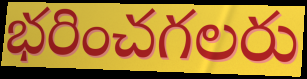
భరించగలరు